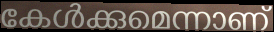
കേൾക്കുമെന്നാണ്